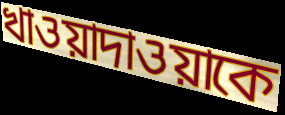
খাওয়াদাওয়াকে